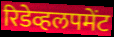
रिडेव्हलपमेंट